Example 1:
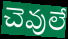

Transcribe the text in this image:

చెవులే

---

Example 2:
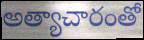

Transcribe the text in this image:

అత్యాచారంతో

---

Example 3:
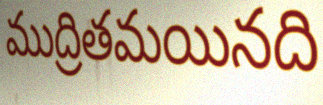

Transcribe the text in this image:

ముద్రితమయినది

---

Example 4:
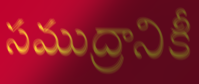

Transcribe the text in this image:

సముద్రానికీ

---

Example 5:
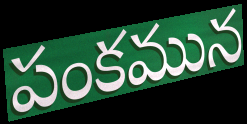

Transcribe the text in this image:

పంకమున